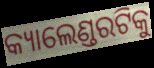
କ୍ୟାଲେଣ୍ଡରଟିକୁ